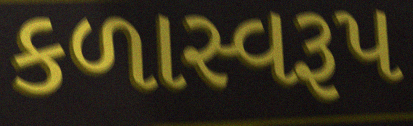
કળાસ્વરૂપ